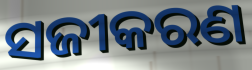
ସଜୀକରଣ